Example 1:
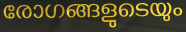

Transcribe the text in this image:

രോഗങ്ങളുടെയും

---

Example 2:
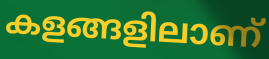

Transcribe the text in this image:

കളങ്ങളിലാണ്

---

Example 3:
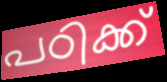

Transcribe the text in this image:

പഠിക്ക്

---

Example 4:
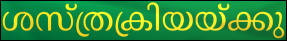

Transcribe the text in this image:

ശസ്ത്രക്രിയയ്ക്കു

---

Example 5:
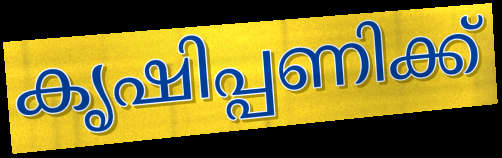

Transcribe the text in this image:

കൃഷിപ്പണിക്ക്